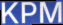
KPM